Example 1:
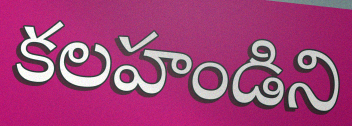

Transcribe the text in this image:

కలహండిని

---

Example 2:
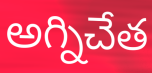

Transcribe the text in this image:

అగ్నిచేత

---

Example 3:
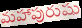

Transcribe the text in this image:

మహాపురుషు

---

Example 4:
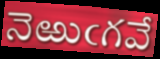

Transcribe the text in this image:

నెఱుఁగవే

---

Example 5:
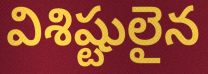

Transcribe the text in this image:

విశిష్టులైన